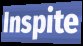
Inspite